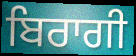
ਬਿਰਾਗੀ